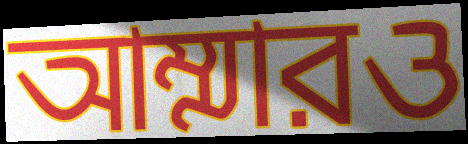
আম্মারও